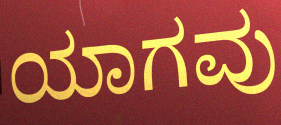
ಯಾಗವು